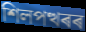
শিলপত্থৰৰ